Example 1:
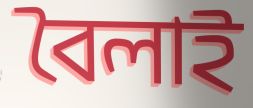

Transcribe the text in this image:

বৈলাই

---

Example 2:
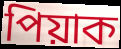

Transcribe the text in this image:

পিয়াক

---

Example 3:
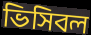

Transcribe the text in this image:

ভিসিবল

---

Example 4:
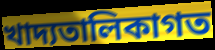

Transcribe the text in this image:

খাদ্যতালিকাগত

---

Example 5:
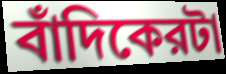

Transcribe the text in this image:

বাঁদিকেরটা